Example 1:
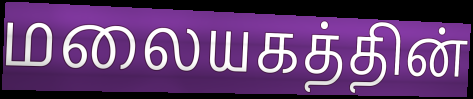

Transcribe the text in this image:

மலையகத்தின்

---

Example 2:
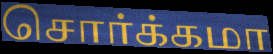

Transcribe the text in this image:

சொர்க்கமா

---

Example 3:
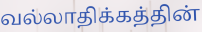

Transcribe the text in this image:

வல்லாதிக்கத்தின்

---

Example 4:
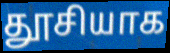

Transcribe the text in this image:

தூசியாக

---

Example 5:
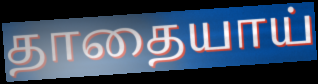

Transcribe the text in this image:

தாதையாய்